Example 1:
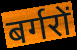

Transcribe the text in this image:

बर्गरों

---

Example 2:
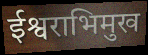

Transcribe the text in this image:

ईश्वराभिमुख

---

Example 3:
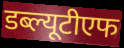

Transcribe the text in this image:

डब्ल्यूटीएफ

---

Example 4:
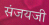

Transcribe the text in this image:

संजयजी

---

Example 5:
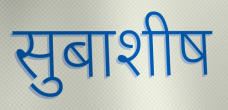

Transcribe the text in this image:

सुबाशीष